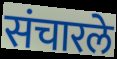
संचारले